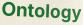
Ontology